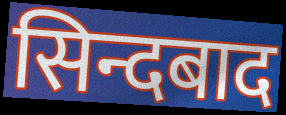
सिन्दबाद